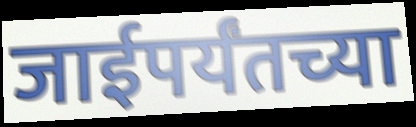
जाईपर्यंतच्या